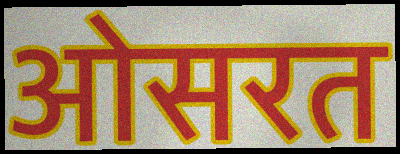
ओसरत